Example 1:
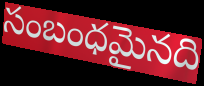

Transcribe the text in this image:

సంబంధమైనది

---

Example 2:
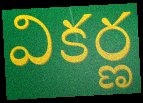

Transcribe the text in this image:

వికర్ణ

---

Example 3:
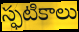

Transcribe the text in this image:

స్ఫటికాలు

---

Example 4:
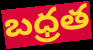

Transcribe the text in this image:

బధ్రత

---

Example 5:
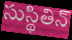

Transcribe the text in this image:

సుస్థితిన్